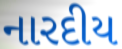
નારદીય